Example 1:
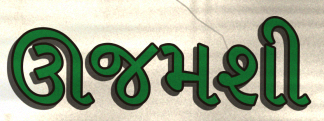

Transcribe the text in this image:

ઊજમશી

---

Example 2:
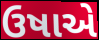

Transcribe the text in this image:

ઉષાએ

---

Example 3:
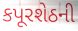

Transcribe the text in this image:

કપૂરશેઠની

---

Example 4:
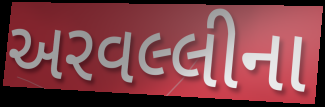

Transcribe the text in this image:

અરવલ્લીના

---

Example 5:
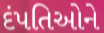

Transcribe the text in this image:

દંપતિઓને